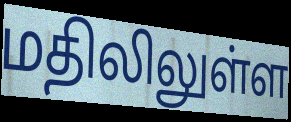
மதிலிலுள்ள